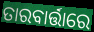
ତାରବାର୍ତ୍ତାରେ